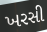
ખરસી